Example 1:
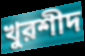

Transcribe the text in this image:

খুরশীদ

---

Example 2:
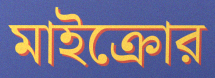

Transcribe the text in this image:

মাইক্রোর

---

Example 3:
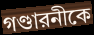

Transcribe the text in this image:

গণ্ডারনীকে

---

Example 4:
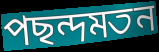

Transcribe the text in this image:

পছন্দমতন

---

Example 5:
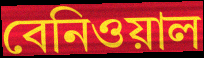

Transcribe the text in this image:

বেনিওয়াল